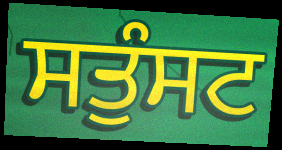
ਸਤੁੰਸਟ